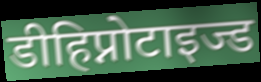
डीहिप्नोटाइज्ड